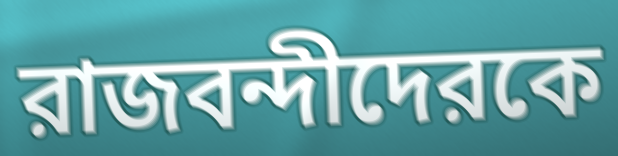
রাজবন্দীদেরকে